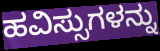
ಹವಿಸ್ಸುಗಳನ್ನು